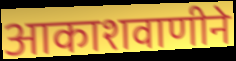
आकाशवाणीने